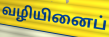
வழியினைப்